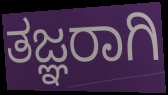
ತಜ್ಞರಾಗಿ